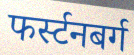
फर्स्टनबर्ग